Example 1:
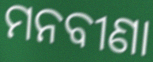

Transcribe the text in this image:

ମନବୀଣା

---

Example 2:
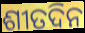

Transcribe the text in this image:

ଶୀତଦିନ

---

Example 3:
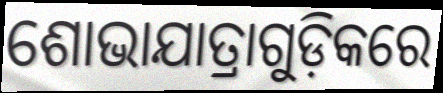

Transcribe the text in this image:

ଶୋଭାଯାତ୍ରାଗୁଡ଼ିକରେ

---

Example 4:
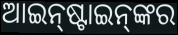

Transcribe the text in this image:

ଆଇନ୍‌ଷ୍ଟାଇନ୍‌ଙ୍କର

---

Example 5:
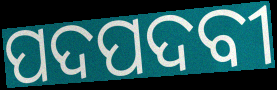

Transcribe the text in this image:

ପଦପଦବୀ